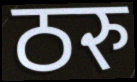
ठरु